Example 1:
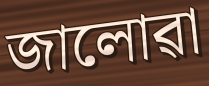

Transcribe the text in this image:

জালোৱা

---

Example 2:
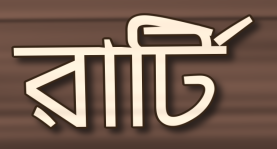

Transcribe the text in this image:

ৱাৰ্টি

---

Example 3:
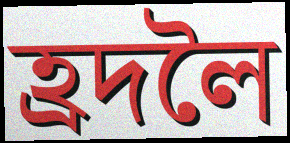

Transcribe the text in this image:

হ্ৰদলৈ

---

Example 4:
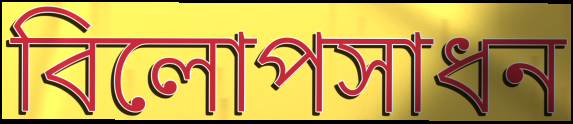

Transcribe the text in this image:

বিলোপসাধন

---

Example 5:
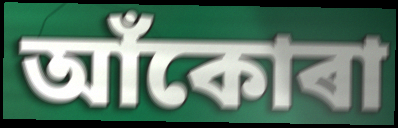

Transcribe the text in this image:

আঁকোৰা